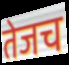
तेजच